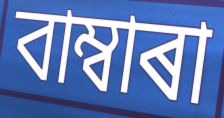
বাম্বাৰা